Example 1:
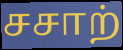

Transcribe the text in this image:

சசாற்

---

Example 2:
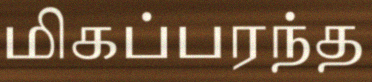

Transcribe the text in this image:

மிகப்பரந்த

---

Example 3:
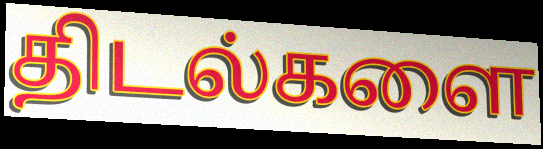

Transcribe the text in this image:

திடல்களை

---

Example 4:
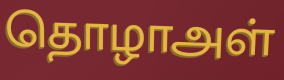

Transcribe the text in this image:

தொழாஅள்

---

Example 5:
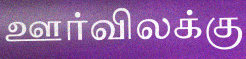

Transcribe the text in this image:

ஊர்விலக்கு